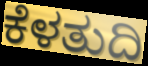
ಕೆಳತುದಿ